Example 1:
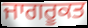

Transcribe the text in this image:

ਜਾਗਰੂਕਤ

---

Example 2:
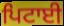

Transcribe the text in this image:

ਪਿਟਾਈ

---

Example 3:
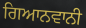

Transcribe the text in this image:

ਗਿਆਨਵਾਨੀ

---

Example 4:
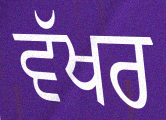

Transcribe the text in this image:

ਵੱਖਰ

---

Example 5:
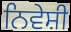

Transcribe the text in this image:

ਨਿਵੇਸ਼ੀ